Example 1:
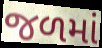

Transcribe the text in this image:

જળમાં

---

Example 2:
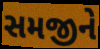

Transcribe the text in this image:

સમજીને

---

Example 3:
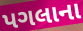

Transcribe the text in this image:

પગલાના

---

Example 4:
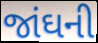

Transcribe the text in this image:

જાંઘની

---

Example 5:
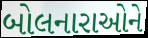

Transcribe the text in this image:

બોલનારાઓને